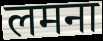
लमना